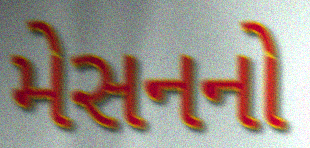
મેસનનો